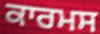
ਕਾਰਮਸ